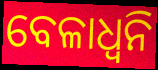
ବେଳାଧ୍ୱନି